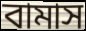
বামাস